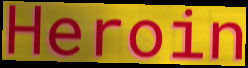
Heroin